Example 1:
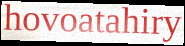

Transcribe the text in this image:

hovoatahiry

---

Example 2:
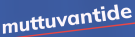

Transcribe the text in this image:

muttuvantide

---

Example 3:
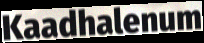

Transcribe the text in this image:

Kaadhalenum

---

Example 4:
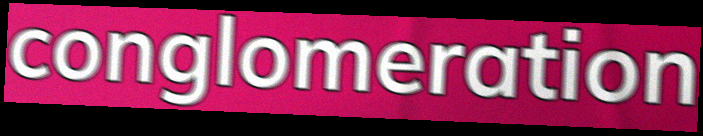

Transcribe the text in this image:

conglomeration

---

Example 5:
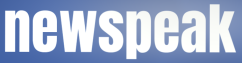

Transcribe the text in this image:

newspeak